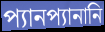
প্যানপ্যানানি